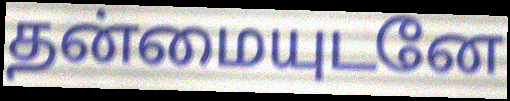
தன்மையுடனே